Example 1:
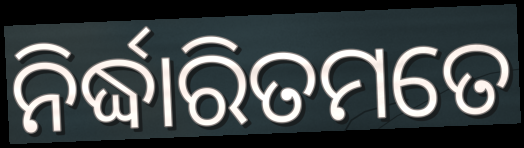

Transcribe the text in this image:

ନିର୍ଦ୍ଧାରିତମତେ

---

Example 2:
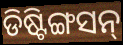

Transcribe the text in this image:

ଡିଷ୍ଟିଙ୍ଗସନ୍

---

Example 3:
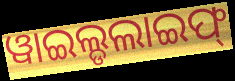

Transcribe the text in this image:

ୱାଇଲ୍ଡଲାଇଫ୍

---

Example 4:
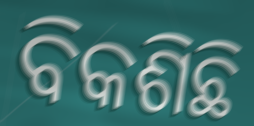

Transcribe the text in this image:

ବିକଶିଛି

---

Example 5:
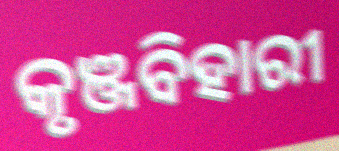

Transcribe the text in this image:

କୃଞ୍ଜବିହାରୀ